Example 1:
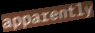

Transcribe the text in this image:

apparently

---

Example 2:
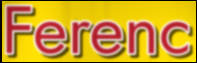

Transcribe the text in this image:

Ferenc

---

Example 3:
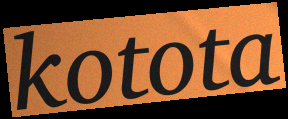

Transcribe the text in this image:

kotota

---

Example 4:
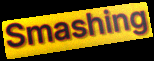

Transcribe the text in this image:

Smashing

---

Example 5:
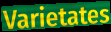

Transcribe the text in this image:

Varietates